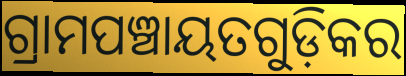
ଗ୍ରାମପଞ୍ଚାୟତଗୁଡ଼ିକର